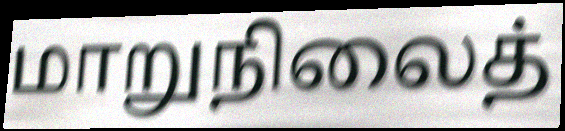
மாறுநிலைத்